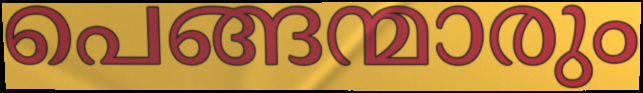
പെങ്ങന്മാരും